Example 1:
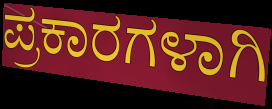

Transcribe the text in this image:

ಪ್ರಕಾರಗಳಾಗಿ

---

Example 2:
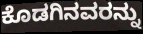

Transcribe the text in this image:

ಕೊಡಗಿನವರನ್ನು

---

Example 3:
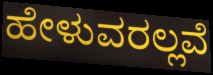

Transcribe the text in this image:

ಹೇಳುವರಲ್ಲವೆ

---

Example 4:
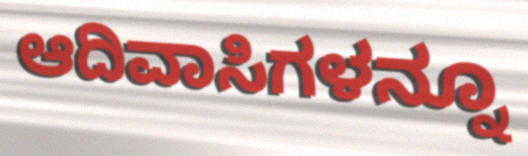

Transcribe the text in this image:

ಆದಿವಾಸಿಗಳನ್ನೂ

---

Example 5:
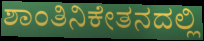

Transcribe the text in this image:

ಶಾಂತಿನಿಕೇತನದಲ್ಲಿ